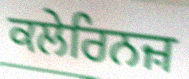
ਕਲੇਰਿਨਜ਼